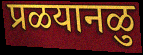
प्रळयानळु